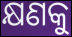
କ୍ଷଣକୁ